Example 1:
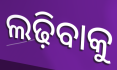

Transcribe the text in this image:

ଲଢ଼ିବାକୁ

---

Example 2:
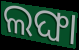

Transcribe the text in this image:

ଲଙ୍ଘା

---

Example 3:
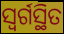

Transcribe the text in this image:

ସ୍ୱର୍ଗସ୍ଥିତ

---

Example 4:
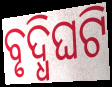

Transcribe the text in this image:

ବୃଦ୍ଧିଘଟି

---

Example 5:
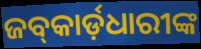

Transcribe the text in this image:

ଜବ୍‍କାର୍ଡ଼ଧାରୀଙ୍କ